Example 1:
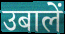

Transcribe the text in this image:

उबालें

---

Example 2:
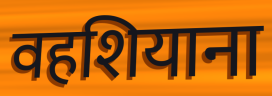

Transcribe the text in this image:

वहशियाना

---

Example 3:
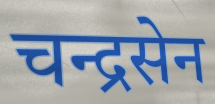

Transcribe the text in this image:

चन्द्रसेन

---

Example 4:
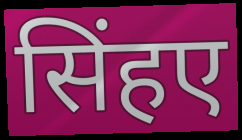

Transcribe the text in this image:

सिंहए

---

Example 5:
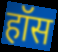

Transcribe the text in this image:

हॉस